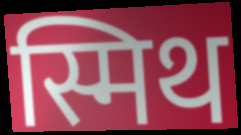
स्मिथ